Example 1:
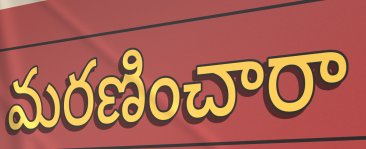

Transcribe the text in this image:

మరణించారా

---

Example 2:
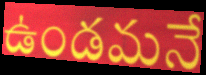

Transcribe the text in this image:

ఉండమనే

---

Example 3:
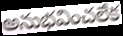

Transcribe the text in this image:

అనుభవించలేక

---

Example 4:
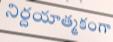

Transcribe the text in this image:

నిర్దయాత్మకంగా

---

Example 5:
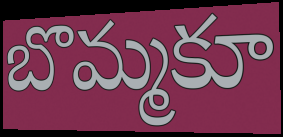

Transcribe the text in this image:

బొమ్మకూ